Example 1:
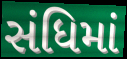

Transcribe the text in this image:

સંધિમાં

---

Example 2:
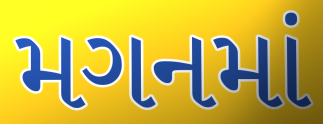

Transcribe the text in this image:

મગનમાં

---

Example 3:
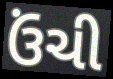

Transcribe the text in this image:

ઉંચી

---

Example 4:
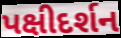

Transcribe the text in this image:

પક્ષીદર્શન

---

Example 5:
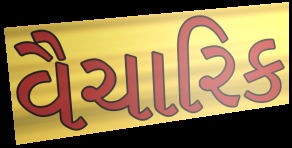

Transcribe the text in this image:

વૈચારિક